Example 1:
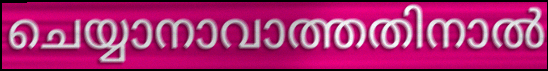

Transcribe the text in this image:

ചെയ്യാനാവാത്തതിനാൽ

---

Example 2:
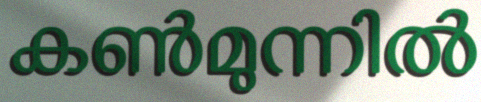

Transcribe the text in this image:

കൺമുന്നിൽ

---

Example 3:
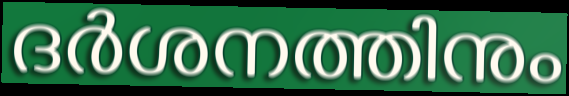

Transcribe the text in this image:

ദർശനത്തിനും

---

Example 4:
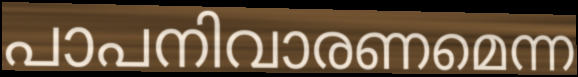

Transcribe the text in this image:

പാപനിവാരണമെന്ന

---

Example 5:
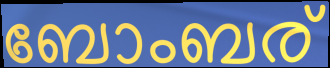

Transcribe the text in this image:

ബോംബര്